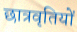
छात्रवृतियों